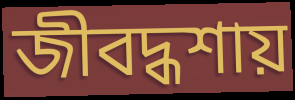
জীবদ্ধশায়